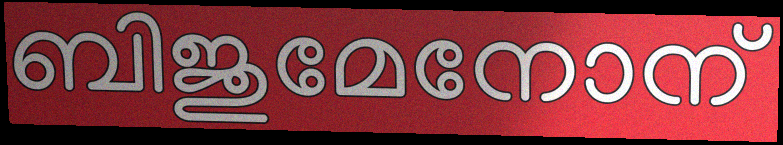
ബിജുമേനോന്